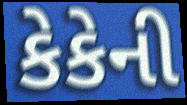
કેકેની